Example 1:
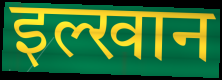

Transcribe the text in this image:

इल्खान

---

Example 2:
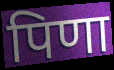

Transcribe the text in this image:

पिणा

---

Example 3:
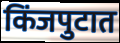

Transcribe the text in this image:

किंजपुटात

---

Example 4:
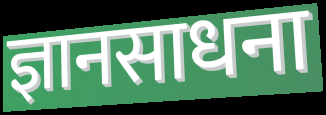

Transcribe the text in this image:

ज्ञानसाधना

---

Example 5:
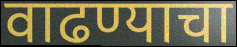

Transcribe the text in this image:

वाढण्याचा